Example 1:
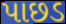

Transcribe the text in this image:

પાછડ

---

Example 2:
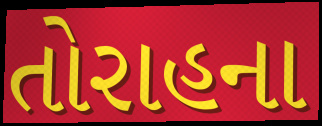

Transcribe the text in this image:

તોરાહના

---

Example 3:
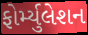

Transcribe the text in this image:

ફોર્મ્યુલેશન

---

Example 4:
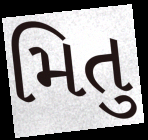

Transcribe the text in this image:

મિતુ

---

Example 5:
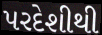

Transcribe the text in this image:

પરદેશીથી